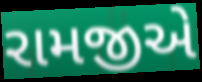
રામજીએ